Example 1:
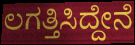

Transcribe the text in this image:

ಲಗತ್ತಿಸಿದ್ದೇನೆ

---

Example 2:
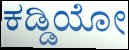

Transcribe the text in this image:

ಕಡ್ಡಿಯೋ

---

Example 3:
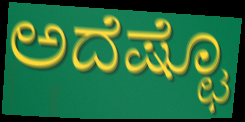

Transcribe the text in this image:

ಅದೆಷ್ಟೊ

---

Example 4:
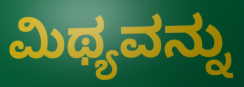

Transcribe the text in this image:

ಮಿಥ್ಯವನ್ನು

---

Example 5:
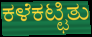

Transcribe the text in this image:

ಕಳೆಕಟ್ಟಿತು